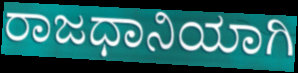
ರಾಜಧಾನಿಯಾಗಿ